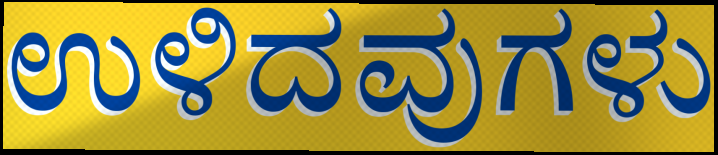
ಉಳಿದವುಗಳು